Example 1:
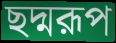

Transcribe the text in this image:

ছদ্মরূপ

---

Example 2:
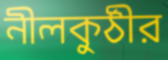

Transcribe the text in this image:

নীলকুঠীর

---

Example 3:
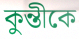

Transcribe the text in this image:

কুন্তীকে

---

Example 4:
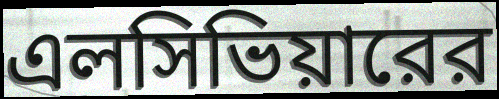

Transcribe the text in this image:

এলসিভিয়ারের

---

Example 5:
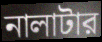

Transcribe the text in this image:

নালাটার